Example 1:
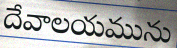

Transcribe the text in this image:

దేవాలయమును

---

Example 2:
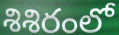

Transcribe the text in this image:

శిశిరంలో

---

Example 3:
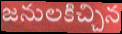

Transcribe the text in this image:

జనులకిచ్చిన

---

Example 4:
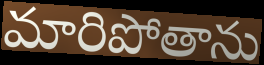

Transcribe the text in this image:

మారిపోతాను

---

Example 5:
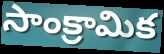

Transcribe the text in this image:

సాంక్రామిక